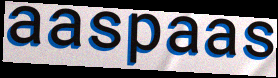
aaspaas